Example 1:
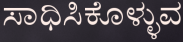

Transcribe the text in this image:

ಸಾಧಿಸಿಕೊಳ್ಳುವ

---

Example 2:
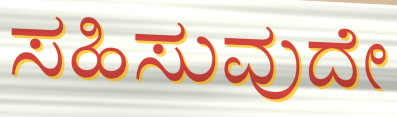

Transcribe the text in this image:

ಸಹಿಸುವುದೇ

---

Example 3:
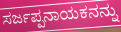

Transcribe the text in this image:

ಸರ್ಜಪ್ಪನಾಯಕನನ್ನು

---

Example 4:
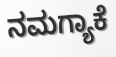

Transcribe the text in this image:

ನಮಗ್ಯಾಕೆ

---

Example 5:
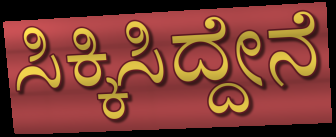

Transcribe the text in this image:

ಸಿಕ್ಕಿಸಿದ್ದೇನೆ